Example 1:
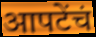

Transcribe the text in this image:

आपटेंचं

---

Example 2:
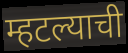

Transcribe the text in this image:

म्हटल्याची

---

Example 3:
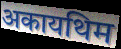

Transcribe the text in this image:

अकायथिम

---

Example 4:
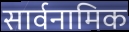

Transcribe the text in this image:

सार्वनामिक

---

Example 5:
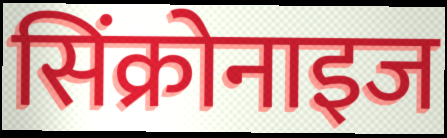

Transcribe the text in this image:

सिंक्रोनाइज